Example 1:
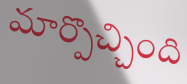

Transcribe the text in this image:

మార్పొచ్చింది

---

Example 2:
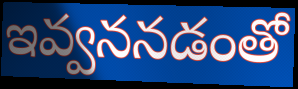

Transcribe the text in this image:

ఇవ్వననడంతో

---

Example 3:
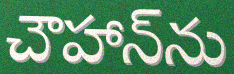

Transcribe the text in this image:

చౌహాన్‌ను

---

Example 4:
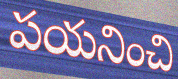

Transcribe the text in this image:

పయనించి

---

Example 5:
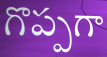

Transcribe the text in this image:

గొప్పగా